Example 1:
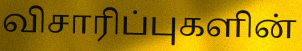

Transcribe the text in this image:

விசாரிப்புகளின்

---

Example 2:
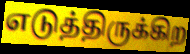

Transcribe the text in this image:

எடுத்திருக்கிற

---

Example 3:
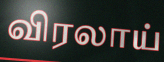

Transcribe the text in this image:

விரலாய்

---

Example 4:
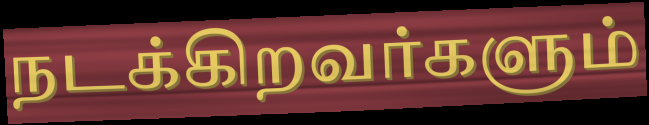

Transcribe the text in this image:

நடக்கிறவர்களும்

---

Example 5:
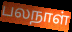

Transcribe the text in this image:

பலநாள்